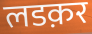
लडक़र